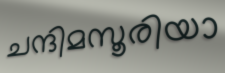
ചന്ദിമസൂരിയാ